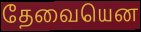
தேவையென